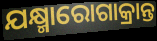
ଯକ୍ଷ୍ମାରୋଗାକ୍ରାନ୍ତ